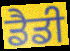
ਡੈਡੀ